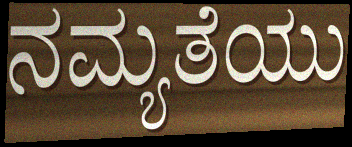
ನಮ್ಯತೆಯು